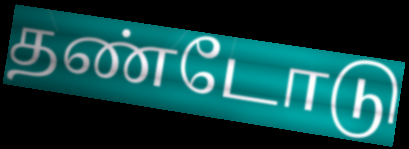
தண்டோடு